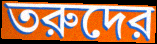
তরুদের